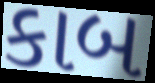
કાબ